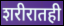
शरीरातही